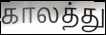
காலத்து